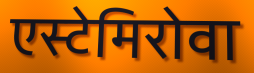
एस्टेमिरोवा